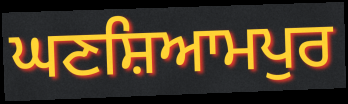
ਘਣਸ਼ਿਆਮਪੁਰ